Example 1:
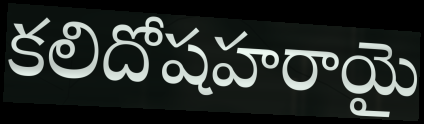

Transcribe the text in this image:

కలిదోషహరాయై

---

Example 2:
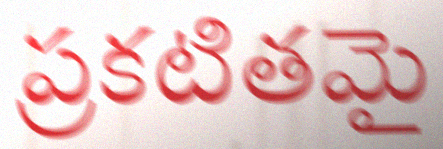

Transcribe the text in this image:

ప్రకటితమై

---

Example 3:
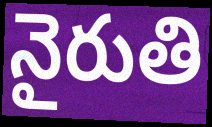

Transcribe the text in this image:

నైరుతి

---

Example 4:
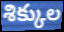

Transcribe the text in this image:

శిక్కుల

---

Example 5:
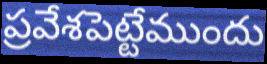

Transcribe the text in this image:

ప్రవేశపెట్టేముందు